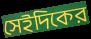
সেইদিকের